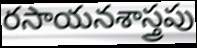
రసాయనశాస్త్రపు